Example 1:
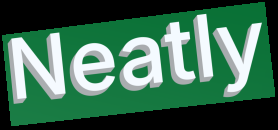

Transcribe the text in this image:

Neatly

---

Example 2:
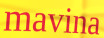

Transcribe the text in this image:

mavina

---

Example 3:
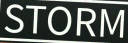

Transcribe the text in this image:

STORM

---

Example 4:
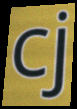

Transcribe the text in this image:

cj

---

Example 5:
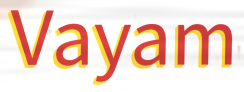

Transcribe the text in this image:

Vayam